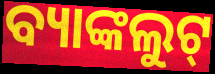
ବ୍ୟାଙ୍କଲୁଟ୍